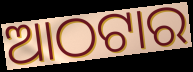
ଆଠଟାର